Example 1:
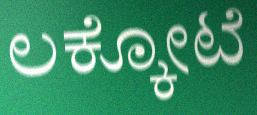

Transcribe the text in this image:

ಲಕ್ಕೋಟೆ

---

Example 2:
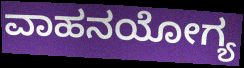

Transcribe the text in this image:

ವಾಹನಯೋಗ್ಯ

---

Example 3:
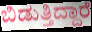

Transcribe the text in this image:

ಬಿಡುತ್ತಿದ್ದಾರೆ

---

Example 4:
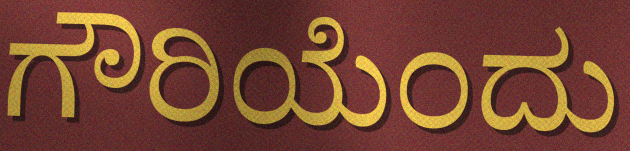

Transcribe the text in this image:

ಗೌರಿಯೆಂದು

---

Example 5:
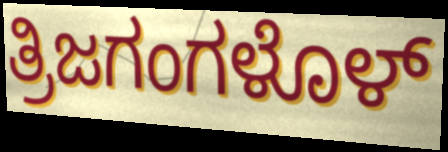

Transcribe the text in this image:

ತ್ರಿಜಗಂಗಳೊಳ್